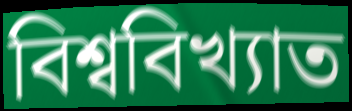
বিশ্ববিখ্যাত